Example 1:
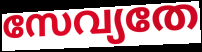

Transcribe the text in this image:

സേവ്യതേ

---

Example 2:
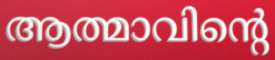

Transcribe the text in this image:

ആത്മാവിന്റെ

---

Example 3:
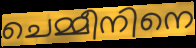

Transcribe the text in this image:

ചെമ്മീനിനെ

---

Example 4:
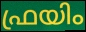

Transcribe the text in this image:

ഫ്രയിം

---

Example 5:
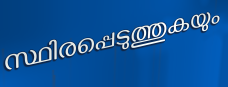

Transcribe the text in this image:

സ്ഥിരപ്പെടുത്തുകയും